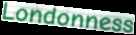
Londonness